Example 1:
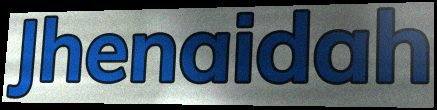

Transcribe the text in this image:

Jhenaidah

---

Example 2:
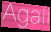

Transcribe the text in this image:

Agali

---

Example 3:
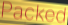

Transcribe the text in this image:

Packed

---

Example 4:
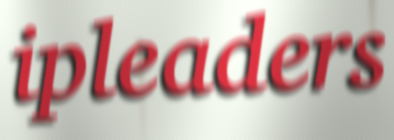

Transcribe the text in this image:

ipleaders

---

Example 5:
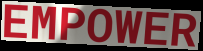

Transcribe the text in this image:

EMPOWER